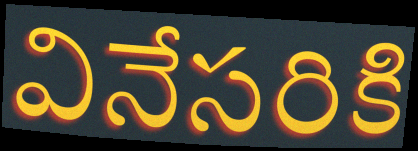
వినేసరికి